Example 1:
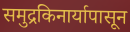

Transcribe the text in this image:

समुद्रकिनार्यापासून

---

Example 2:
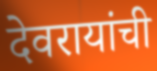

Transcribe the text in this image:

देवरायांची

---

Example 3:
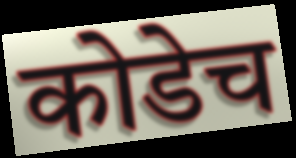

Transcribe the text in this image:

कोडेच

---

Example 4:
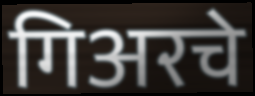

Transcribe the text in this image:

गिअरचे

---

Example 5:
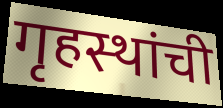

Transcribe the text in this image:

गृहस्थांची